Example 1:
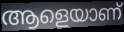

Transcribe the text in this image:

ആളെയാണ്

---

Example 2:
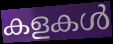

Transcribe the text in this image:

കളകൾ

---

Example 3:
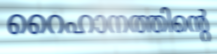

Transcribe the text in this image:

റൈഹാനത്തിന്റെ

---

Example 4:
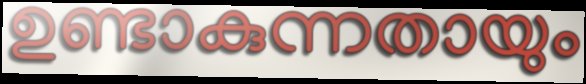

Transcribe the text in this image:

ഉണ്ടാകുന്നതായും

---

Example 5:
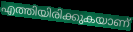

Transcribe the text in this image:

എത്തിയിരിക്കുകയാണ്